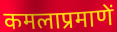
कमलाप्रमाणें